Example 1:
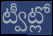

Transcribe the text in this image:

ట్వీట్లో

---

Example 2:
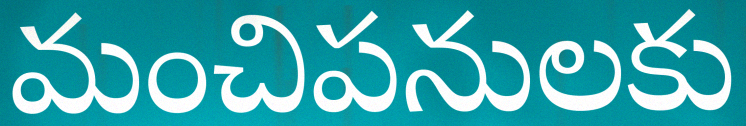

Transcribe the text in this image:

మంచిపనులకు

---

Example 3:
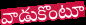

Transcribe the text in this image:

వాడుకొంటూ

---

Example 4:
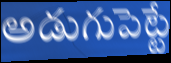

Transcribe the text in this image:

అడుగుపెట్టే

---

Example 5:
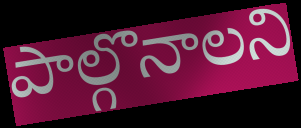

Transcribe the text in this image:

పాల్గొనాలని